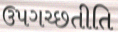
ઉપગચ્છતીતિ